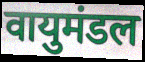
वायुमंडल